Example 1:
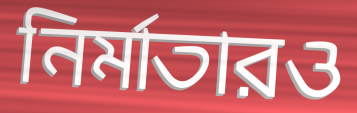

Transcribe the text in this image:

নির্মাতারও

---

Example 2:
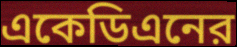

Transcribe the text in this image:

একেডিএনের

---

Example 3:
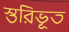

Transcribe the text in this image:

স্তরিভূত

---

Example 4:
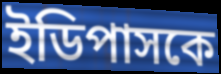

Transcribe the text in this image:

ইডিপাসকে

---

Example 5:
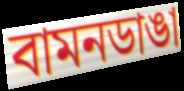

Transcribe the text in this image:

বামনডাঙা